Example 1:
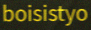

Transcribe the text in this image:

boisistyo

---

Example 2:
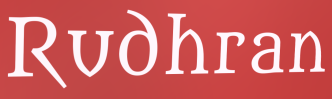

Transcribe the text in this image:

Rudhran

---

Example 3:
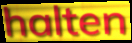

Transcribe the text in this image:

halten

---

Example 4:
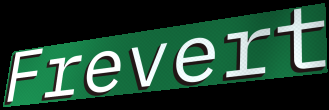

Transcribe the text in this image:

Frevert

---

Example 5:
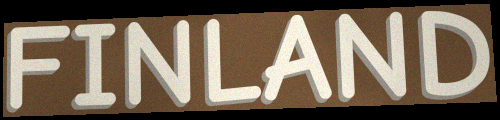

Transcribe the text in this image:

FINLAND